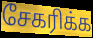
சேகரிக்க